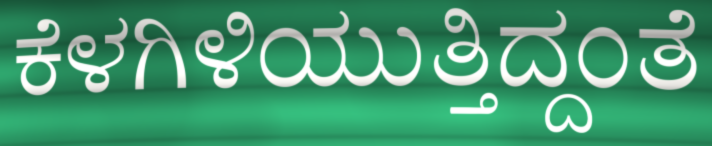
ಕೆಳಗಿಳಿಯುತ್ತಿದ್ದಂತೆ